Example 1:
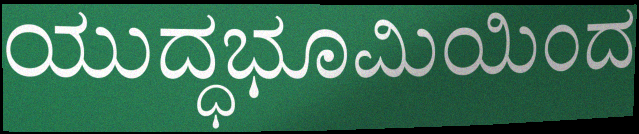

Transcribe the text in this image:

ಯುದ್ಧಭೂಮಿಯಿಂದ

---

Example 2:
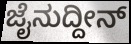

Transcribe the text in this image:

ಜೈನುದ್ದೀನ್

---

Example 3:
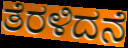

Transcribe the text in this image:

ತೆರಳಿದನೆ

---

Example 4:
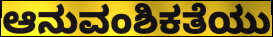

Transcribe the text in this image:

ಆನುವಂಶಿಕತೆಯು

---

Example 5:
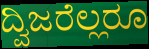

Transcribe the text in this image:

ದ್ವಿಜರೆಲ್ಲರೂ